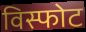
विस्फोट